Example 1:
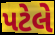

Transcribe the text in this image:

પટેલે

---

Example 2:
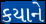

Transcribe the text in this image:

કયાને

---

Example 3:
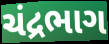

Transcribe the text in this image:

ચંદ્રભાગ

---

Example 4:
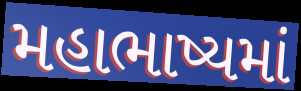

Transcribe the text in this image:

મહાભાષ્યમાં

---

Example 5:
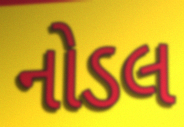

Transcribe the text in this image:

નોડલ